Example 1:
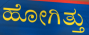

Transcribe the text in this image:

ಹೋಗಿತ್ತು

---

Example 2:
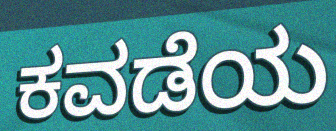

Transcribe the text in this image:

ಕವಡೆಯ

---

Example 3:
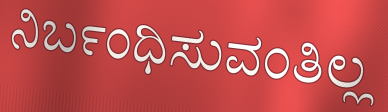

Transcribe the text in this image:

ನಿರ್ಬಂಧಿಸುವಂತಿಲ್ಲ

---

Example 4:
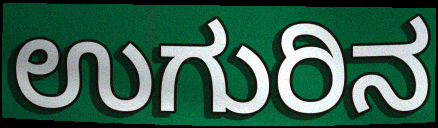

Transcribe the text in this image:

ಉಗುರಿನ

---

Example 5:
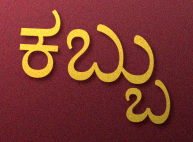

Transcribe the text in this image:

ಕಬ್ಬು